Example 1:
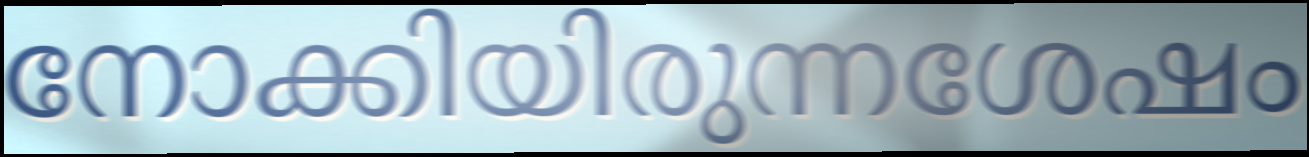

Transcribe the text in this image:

നോക്കിയിരുന്നശേഷം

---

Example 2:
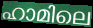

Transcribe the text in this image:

ഹാമിലെ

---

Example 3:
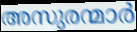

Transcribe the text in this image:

അസുരന്മാർ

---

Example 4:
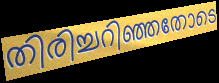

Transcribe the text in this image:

തിരിച്ചറിഞ്ഞതോടെ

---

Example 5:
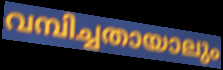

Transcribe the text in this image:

വമ്പിച്ചതായാലും